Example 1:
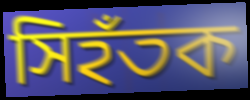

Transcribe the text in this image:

সিহঁতক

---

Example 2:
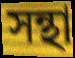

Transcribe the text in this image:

সন্থা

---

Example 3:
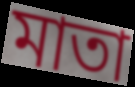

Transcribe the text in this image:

মাতা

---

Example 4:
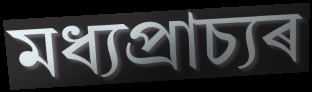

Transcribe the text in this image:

মধ্যপ্ৰাচ্যৰ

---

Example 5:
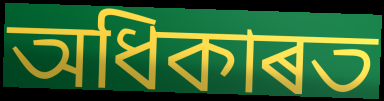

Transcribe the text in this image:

অধিকাৰত